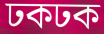
ঢকঢক